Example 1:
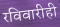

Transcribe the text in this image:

रविवारीही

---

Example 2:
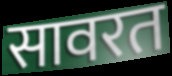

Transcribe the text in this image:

सावरत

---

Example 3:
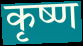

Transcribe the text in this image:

कृष्ण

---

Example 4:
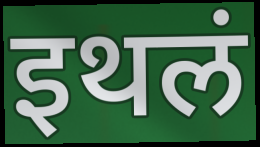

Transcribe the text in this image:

इथलं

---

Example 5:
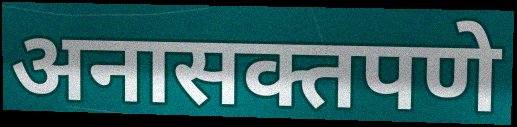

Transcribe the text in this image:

अनासक्तपणे